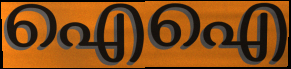
ഐഐ